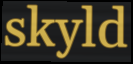
skyld